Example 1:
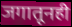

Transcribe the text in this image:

जगातूनही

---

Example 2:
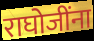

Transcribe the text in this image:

राघोजींना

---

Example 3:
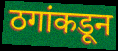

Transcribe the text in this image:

ठगांकडून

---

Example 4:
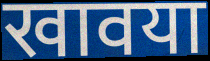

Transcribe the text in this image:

खावया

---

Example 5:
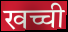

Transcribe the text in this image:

खच्ची